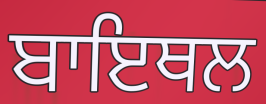
ਬਾਇਥਲ